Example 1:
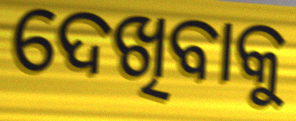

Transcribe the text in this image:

ଦେଖିବାକୁ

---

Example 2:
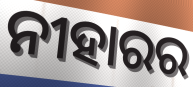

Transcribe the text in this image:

ନୀହାରର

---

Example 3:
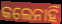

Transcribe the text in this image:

କଲେନାହିଁ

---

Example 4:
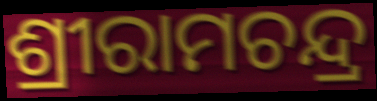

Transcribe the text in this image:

ଶ୍ରୀରାମଚନ୍ଦ୍ର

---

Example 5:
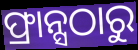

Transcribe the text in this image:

ଫ୍ରାନ୍ସଠାରୁ